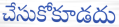
చేసుకోకూడదు